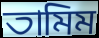
তামিম